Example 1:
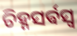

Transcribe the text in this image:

ଚିହ୍ନସର୍ଵସ୍ଵ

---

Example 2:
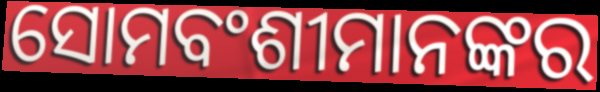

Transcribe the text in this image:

ସୋମବଂଶୀମାନଙ୍କର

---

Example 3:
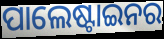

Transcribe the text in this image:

ପାଲେଷ୍ଟାଇନର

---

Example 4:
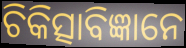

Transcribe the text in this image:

ଚିକିତ୍ସାବିଜ୍ଞାନେ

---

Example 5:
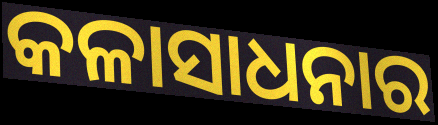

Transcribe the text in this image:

କଳାସାଧନାର